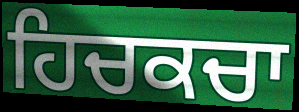
ਹਿਚਕਚਾ